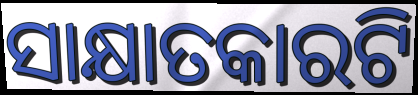
ସାକ୍ଷାତକାରଟି